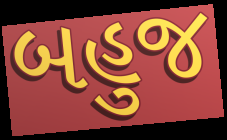
બહુજ